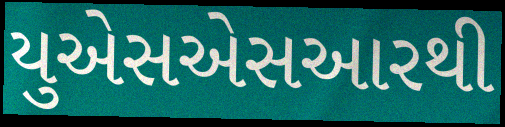
યુએસએસઆરથી